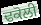
ਢਕੋਲੀ